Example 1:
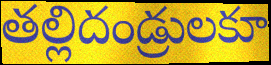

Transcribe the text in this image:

తల్లిదండ్రులకూ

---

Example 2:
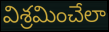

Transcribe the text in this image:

విశ్రమించేలా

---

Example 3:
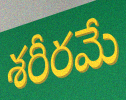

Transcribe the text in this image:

శరీరమే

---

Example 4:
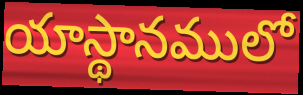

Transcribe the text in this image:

యాస్థానములో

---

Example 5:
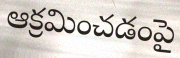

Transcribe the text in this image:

ఆక్రమించడంపై